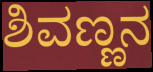
ಶಿವಣ್ಣನ